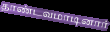
தாண்டவமாடினார்